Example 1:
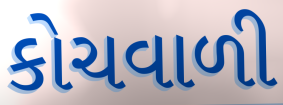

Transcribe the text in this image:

કોચવાળી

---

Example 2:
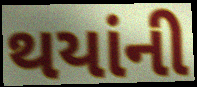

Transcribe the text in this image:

થયાંની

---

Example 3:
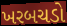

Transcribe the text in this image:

ખરબચડો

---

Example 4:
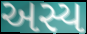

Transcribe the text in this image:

અસ્ય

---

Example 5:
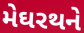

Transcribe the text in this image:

મેઘરથને